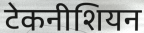
टेकनीशियन